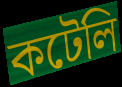
কটেলি